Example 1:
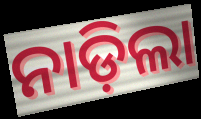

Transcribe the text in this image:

ନାଡ଼ିଲା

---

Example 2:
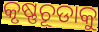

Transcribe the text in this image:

କୃଷ୍ଣଚୂଡାକୁ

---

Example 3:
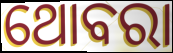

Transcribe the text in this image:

ଥୋବରା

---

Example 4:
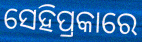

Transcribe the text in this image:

ସେହିପ୍ରକାରେ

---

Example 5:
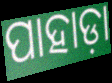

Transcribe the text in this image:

ପାହାଡ଼ା